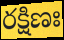
రక్షిణః